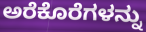
ಅರೆಕೊರೆಗಳನ್ನು